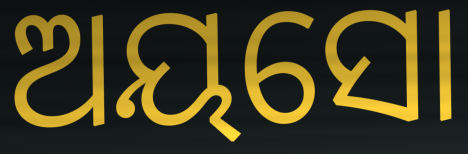
ଅୟସୋ